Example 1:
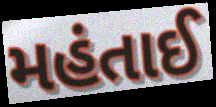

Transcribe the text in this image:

મહંતાઈ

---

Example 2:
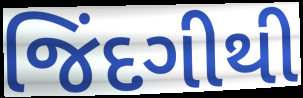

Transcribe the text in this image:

જિંદગીથી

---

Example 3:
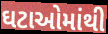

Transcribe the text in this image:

ઘટાઓમાંથી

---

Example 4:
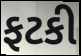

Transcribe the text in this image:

ફટકી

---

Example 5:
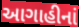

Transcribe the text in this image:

આગાહીનાં